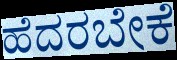
ಹೆದರಬೇಕೆ